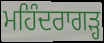
ਮਹਿੰਦਰਾਗੜ੍ਹ